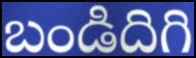
బండిదిగి